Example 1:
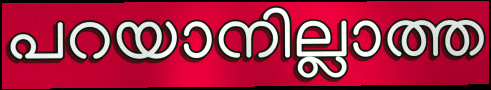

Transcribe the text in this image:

പറയാനില്ലാത്ത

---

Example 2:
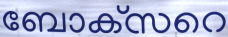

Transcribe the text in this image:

ബോക്‌സറെ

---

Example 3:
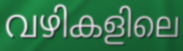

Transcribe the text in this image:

വഴികളിലെ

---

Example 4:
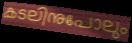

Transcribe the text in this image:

കടലിനുപോലും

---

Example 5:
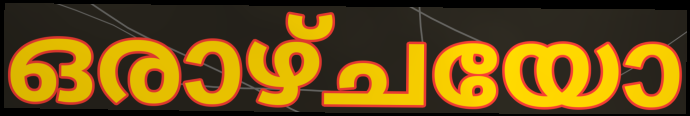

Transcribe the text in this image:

ഒരാഴ്ചയോ